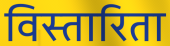
विस्तारिता